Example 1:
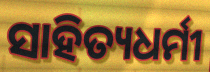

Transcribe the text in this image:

ସାହିତ୍ୟଧର୍ମୀ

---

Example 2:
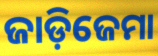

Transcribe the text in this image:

ଜାଡ଼ିଜେମା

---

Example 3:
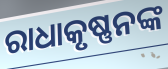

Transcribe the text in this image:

ରାଧାକୃଷ୍ଣନଙ୍କ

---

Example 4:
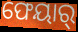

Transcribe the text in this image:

ଫେୟାର୍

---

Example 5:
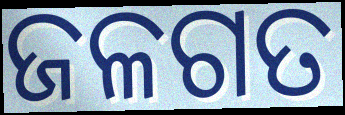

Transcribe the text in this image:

ଜଳଗତ